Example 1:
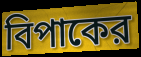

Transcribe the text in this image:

বিপাকের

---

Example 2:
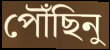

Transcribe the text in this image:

পৌঁছিনু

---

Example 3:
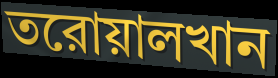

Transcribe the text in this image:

তরোয়ালখান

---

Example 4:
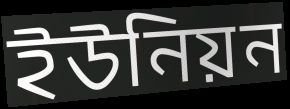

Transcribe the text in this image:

ইউনিয়ন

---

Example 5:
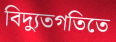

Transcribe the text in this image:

বিদ্যুতগতিতে